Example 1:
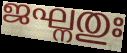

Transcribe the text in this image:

ജഘ്നതുഃ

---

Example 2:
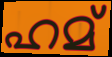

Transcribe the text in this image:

ഹമ്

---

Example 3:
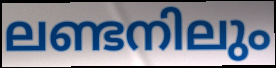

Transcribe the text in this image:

ലണ്ടനിലും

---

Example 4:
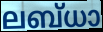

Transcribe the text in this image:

ലബ്ധാ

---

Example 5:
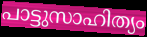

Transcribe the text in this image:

പാട്ടുസാഹിത്യം